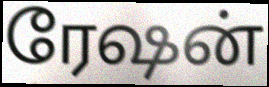
ரேஷன்